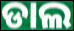
ଡାଲ